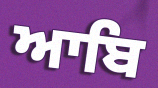
ਆਬਿ